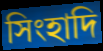
সিংহাদি